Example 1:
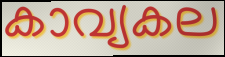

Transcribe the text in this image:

കാവ്യകല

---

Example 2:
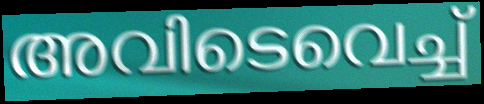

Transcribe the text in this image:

അവിടെവെച്ച്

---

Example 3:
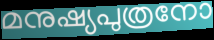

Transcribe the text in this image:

മനുഷ്യപുത്രനോ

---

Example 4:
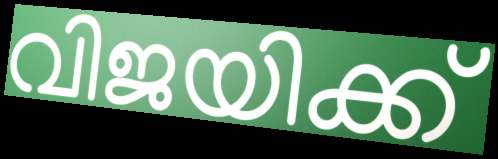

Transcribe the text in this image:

വിജയിക്ക്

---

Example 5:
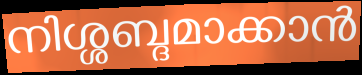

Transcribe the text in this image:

നിശ്ശബ്ദമാക്കാൻ